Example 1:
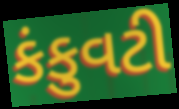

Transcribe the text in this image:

કંકુવટી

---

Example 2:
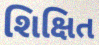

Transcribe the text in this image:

શિક્ષિત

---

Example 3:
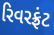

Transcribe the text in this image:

રિવરફ્રંટ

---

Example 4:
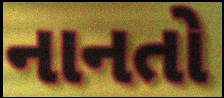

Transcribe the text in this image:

નાનતો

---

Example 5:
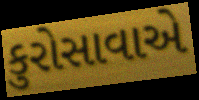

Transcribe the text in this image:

કુરોસાવાએ